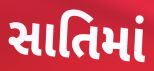
સાતિમાં